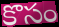
కొసం